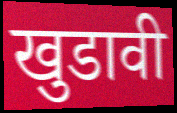
खुडावी